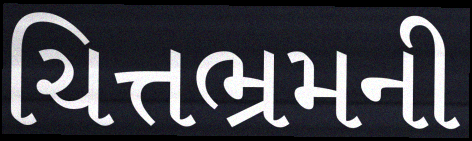
ચિત્તભ્રમની